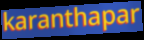
karanthapar